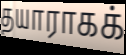
தயாராகக்